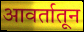
आवर्तातून